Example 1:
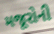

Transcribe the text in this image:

મજૂરોની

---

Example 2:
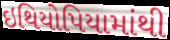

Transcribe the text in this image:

ઇથિયોપિયામાંથી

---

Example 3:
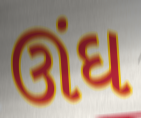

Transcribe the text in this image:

ઊંઘ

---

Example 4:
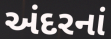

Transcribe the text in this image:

અંદરનાં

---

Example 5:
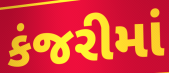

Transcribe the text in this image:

કંજરીમાં